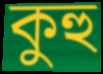
কুহু